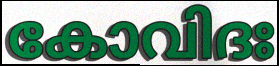
കോവിദഃ